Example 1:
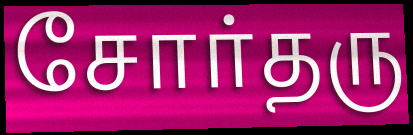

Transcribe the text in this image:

சோர்தரு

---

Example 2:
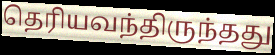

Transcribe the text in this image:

தெரியவந்திருந்தது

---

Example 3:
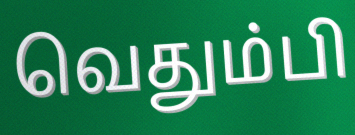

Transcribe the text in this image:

வெதும்பி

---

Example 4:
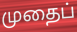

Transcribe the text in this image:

முதைப்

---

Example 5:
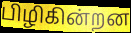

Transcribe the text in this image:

பிழிகின்றன